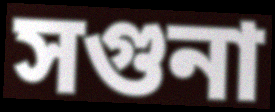
সগুনা